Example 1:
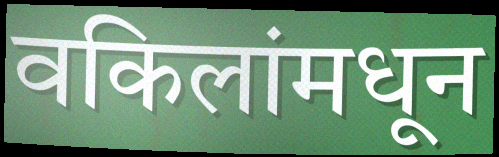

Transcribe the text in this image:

वकिलांमधून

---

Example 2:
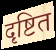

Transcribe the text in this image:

दृष्टित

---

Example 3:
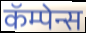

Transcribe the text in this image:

कॅम्पेन्स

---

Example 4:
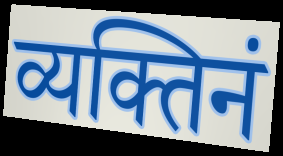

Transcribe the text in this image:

व्यक्तिनं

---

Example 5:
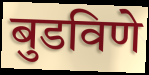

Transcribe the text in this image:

बुडविणे